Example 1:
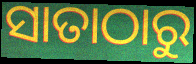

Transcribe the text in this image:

ସାତାଠାରୁ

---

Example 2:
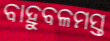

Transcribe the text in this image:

ବାହୁବଳମସ୍ତ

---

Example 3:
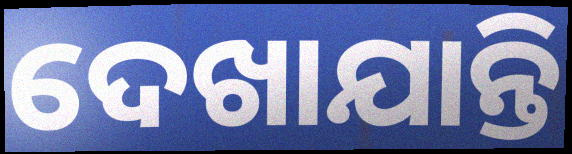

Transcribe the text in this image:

ଦେଖାଯାନ୍ତି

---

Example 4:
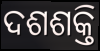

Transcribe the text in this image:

ଦଶଶକ୍ତି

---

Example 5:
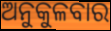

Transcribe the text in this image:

ଅନୁକୁଳବାର